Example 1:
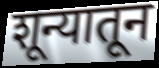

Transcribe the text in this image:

शून्यातून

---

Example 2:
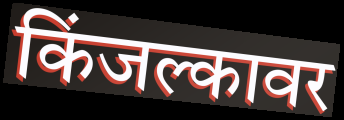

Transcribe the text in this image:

किंजल्कावर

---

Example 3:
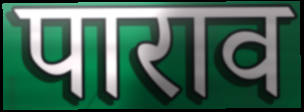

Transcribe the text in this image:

पाराव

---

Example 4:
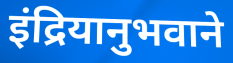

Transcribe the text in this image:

इंद्रियानुभवाने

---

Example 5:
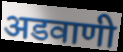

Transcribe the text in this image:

अडवाणी